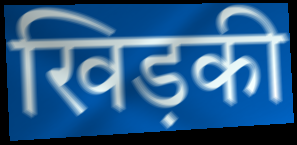
खिड़की